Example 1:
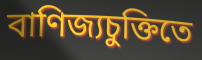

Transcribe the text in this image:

বাণিজ্যচুক্তিতে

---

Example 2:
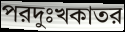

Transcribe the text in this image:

পরদুঃখকাতর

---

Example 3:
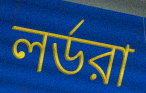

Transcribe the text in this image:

লর্ডরা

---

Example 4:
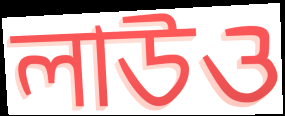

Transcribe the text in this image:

লাউও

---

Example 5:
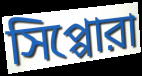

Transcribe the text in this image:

সিপ্পোরা